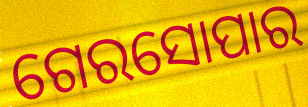
ଗେରସୋପାର